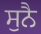
ਸੁਨੈ